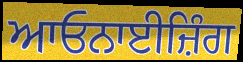
ਆਓਨਾਈਜ਼ਿੰਗ